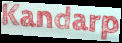
Kandarp